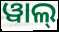
ୱାଲ୍